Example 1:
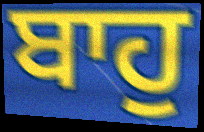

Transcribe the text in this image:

ਬਾਹੁ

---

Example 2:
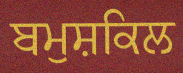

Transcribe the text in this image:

ਬਮੁਸ਼ਕਿਲ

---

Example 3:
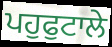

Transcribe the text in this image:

ਪਹੁਫੁਟਾਲੇ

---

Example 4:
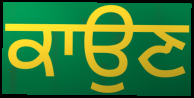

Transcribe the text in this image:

ਕਾਉਣ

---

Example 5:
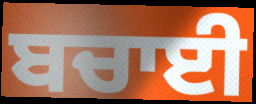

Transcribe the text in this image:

ਬਚਾਈ